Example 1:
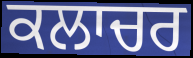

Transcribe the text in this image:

ਕਲਾਚਰ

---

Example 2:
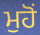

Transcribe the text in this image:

ਮੁਹੋਂ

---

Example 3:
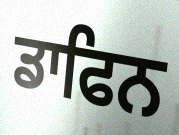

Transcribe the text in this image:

ਡਾਫਿਨ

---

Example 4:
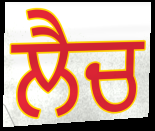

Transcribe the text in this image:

ਲੈਚ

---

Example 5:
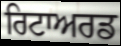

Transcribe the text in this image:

ਰਿਟਾਅਰਡ